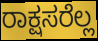
ರಾಕ್ಷಸರೆಲ್ಲ